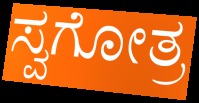
ಸ್ವಗೋತ್ರ